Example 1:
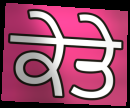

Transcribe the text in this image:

ਕੇਤੇ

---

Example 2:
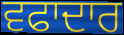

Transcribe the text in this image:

ਵਫਾਦਾਰ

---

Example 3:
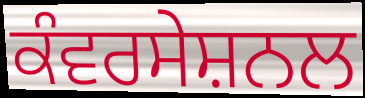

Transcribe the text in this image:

ਕੰਵਰਸੇਸ਼ਨਲ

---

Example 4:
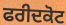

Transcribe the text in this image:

ਫਰੀਦਕੋਟ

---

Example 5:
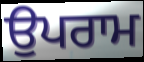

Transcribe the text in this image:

ਉਪਰਾਮ